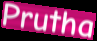
Prutha